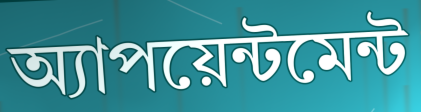
অ্যাপয়েন্টমেন্ট